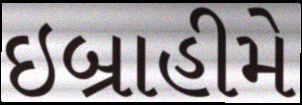
ઇબ્રાહીમે